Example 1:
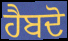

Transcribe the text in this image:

ਹੈਬਦੋ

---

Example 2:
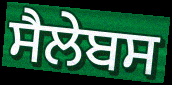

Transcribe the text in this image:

ਸੈਲੇਬਸ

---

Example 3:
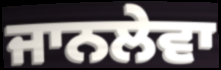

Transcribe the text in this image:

ਜਾਨਲੇਵਾ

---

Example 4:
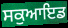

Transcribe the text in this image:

ਸਕੁਆਇਡ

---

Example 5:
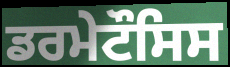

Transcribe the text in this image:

ਡਰਮੇਟੌਸਿਸ